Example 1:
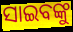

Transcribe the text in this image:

ସାଇବଙ୍କୁ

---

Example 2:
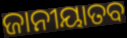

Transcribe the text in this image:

ଜାନୀୟାତବ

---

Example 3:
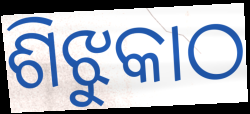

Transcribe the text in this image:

ଶିଝୁକାଠ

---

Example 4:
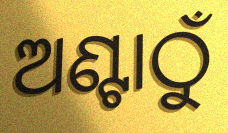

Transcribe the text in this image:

ଅଣ୍ଟାଠୁଁ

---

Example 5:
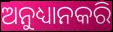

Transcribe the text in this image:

ଅନୁଧ୍ୟାନକରି